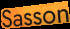
Sasson